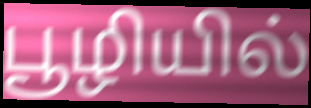
பூழியில்